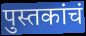
पुस्तकांचं